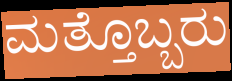
ಮತ್ತೊಬ್ಬರು